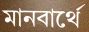
মানবার্থে